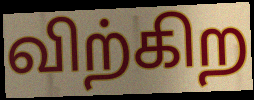
விற்கிற